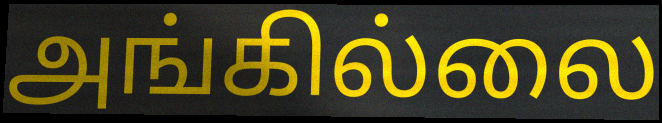
அங்கில்லை